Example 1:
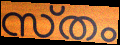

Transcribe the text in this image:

സ്‌തം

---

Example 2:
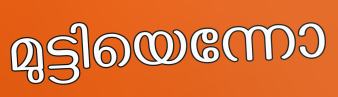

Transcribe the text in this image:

മുട്ടിയെന്നോ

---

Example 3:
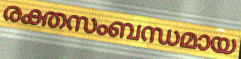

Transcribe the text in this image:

രക്തസംബന്ധമായ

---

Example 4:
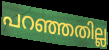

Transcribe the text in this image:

പറഞ്ഞതില്ല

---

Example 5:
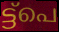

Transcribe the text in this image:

ട്ട്പെ